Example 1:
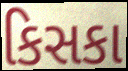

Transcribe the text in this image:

કિસકા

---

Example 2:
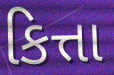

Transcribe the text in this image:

કિત્તા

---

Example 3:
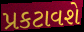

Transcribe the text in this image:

પ્રકટાવશે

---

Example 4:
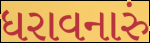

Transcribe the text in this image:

ધરાવનારું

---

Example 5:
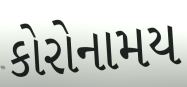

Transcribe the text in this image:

કોરોનામય